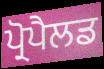
ਪ੍ਰੋਪੈਲਡ